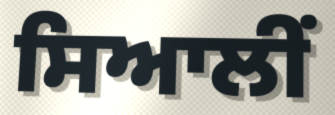
ਸਿਆਲੀਂ